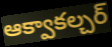
ఆక్వాకల్చర్